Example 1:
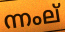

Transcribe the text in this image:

ന്നംല്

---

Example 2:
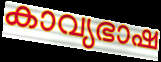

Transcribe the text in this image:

കാവ്യഭാഷ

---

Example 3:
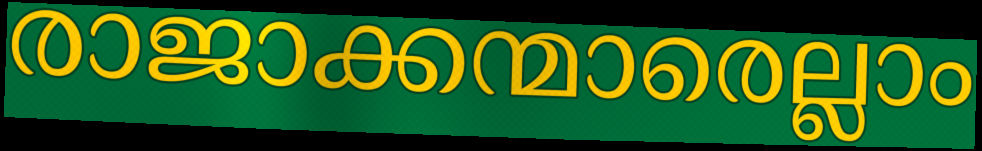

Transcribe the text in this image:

രാജാക്കന്മാരെല്ലാം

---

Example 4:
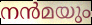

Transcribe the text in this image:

നൻമയും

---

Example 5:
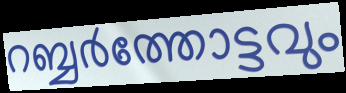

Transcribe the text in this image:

റബ്ബർത്തോട്ടവും